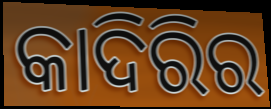
କାଦିରିର